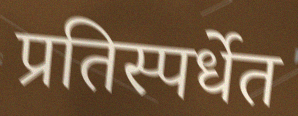
प्रतिस्पर्धेत